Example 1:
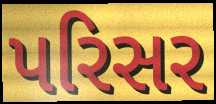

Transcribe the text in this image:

પરિસર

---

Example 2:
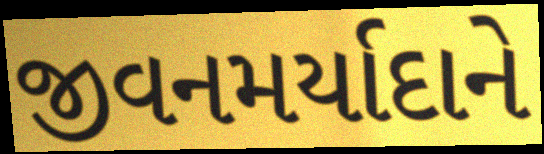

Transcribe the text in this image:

જીવનમર્યાદાને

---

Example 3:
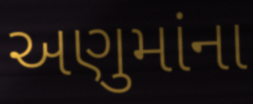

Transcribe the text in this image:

અણુમાંના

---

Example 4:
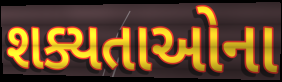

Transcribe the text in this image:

શક્યતાઓના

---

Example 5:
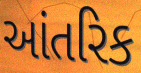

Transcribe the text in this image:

આંતરિક